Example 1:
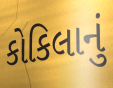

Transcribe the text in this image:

કોકિલાનું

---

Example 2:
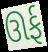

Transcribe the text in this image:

ઊર્ફ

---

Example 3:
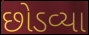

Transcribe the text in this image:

છોડવ્યા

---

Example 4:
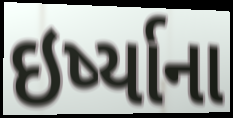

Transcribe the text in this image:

ઇર્ષ્યાના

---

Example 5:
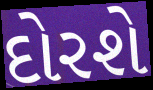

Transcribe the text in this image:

દોરશે